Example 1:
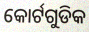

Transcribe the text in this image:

କୋର୍ଟଗୁଡିକ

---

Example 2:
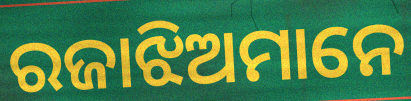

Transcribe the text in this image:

ରଜାଝିଅମାନେ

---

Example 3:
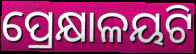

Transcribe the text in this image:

ପ୍ରେକ୍ଷାଳୟଟି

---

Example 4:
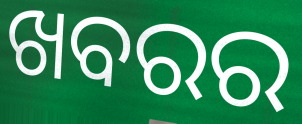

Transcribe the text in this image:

ଖବରର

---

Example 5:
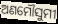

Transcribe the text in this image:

ଅଣମୌସୁମୀ